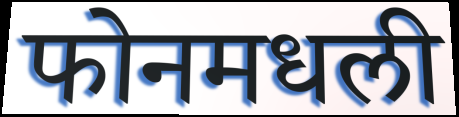
फोनमधली